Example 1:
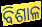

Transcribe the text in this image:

ବିଶାଳ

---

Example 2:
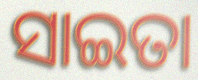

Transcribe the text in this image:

ସାଇତା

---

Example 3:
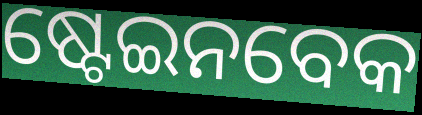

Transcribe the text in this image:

ଷ୍ଟେଇନବେକ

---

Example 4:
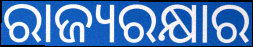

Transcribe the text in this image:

ରାଜ୍ୟରକ୍ଷାର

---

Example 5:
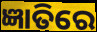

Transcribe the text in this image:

ଜ୍ଞାତିରେ